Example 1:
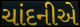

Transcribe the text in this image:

ચાંદનીએ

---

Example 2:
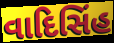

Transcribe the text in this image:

વાદિસિંહ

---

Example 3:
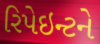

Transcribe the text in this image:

રિપેઇન્ટને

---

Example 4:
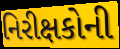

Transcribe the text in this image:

નિરીક્ષકોની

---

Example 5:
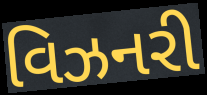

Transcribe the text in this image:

વિઝનરી